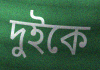
দুইকে